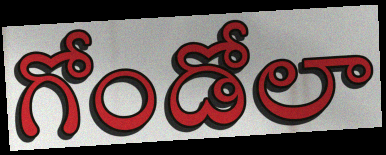
గోండోలా